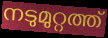
നടുമുറ്റത്ത്